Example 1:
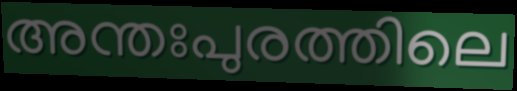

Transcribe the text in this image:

അന്തഃപുരത്തിലെ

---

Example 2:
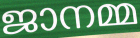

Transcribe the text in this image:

ജാനമ്മ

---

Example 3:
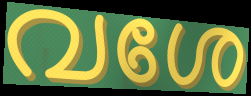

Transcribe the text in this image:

വശേ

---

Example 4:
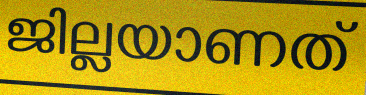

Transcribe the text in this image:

ജില്ലയാണത്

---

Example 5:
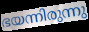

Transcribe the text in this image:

ഭയന്നിരുന്നു